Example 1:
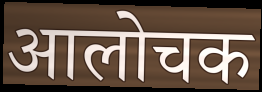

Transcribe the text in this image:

आलोचक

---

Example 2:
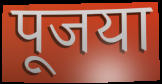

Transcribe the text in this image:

पूजया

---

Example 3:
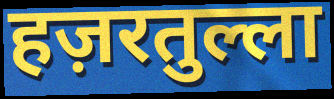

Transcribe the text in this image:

हज़रतुल्ला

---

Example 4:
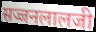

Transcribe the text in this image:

सज्जनलालजी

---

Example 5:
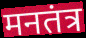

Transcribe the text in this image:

मनतंत्र